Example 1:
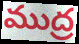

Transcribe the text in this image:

ముద్ర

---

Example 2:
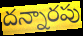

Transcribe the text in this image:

దన్నారపు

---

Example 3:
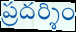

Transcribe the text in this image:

ప్రదర్శిం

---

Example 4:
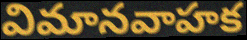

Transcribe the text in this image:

విమానవాహక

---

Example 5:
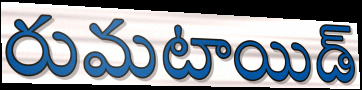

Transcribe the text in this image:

రుమటాయిడ్